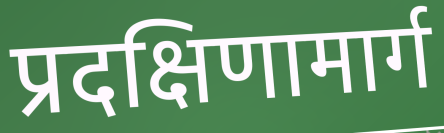
प्रदक्षिणामार्ग